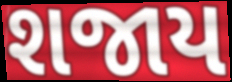
શજાય